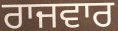
ਰਾਜਵਾਰ